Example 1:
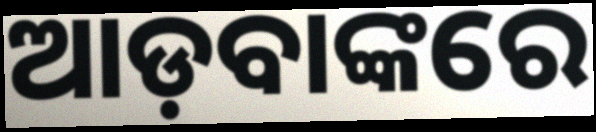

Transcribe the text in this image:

ଆଡ଼ବାଙ୍କରେ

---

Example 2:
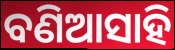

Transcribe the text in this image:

ବଣିଆସାହି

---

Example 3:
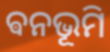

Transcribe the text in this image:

ଵନଭୂମି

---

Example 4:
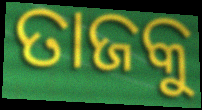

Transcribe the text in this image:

ତାଜକୁ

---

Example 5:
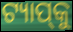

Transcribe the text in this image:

ଟ୍ୟାପ୍‌କୁ